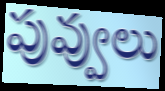
పువ్వులు